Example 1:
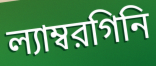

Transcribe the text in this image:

ল্যাম্বরগিনি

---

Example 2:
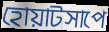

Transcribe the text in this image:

হোয়াটসাপে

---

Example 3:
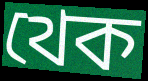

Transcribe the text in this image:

থেক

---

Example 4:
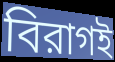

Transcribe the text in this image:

বিরাগই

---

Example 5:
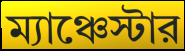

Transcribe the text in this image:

ম্যাঞ্চেস্টার